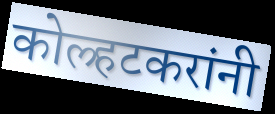
कोल्हटकरांनी